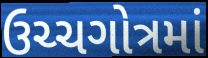
ઉચ્ચગોત્રમાં